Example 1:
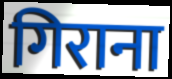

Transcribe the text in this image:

गिराना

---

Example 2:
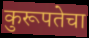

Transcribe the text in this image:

कुरूपतेचा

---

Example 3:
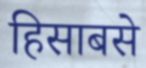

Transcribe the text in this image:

हिसाबसे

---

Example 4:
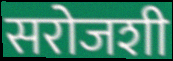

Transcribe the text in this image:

सरोजशी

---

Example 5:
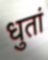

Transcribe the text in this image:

धुतां